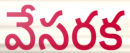
వేసరక